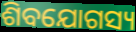
ଶିବଯୋଗସ୍ୟ